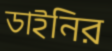
ডাইনির